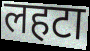
लहटा